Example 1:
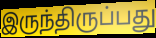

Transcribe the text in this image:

இருந்திருப்பது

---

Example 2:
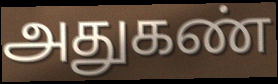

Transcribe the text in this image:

அதுகண்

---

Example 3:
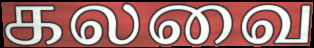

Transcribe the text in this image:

கலவை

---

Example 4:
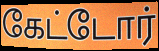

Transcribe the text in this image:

கேட்டோர்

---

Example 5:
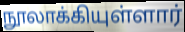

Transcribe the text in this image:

நூலாக்கியுள்ளார்